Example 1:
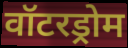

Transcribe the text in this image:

वॉटरड्रोम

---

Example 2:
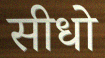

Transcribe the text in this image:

सीधो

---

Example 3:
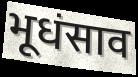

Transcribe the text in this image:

भूधंसाव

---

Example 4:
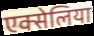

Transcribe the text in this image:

एक्सेलिया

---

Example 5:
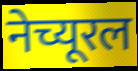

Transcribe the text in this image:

नेच्यूरल